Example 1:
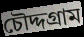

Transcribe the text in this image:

চৌদ্দগ্রাম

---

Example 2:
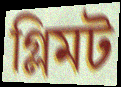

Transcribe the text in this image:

গ্লিমট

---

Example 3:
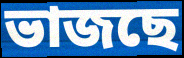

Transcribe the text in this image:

ভাজছে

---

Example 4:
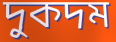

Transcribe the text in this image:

দুকদম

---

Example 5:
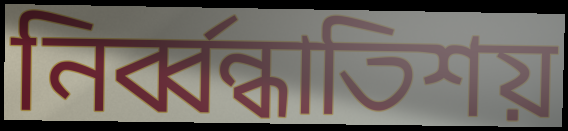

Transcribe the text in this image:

নির্ব্বন্ধাতিশয়